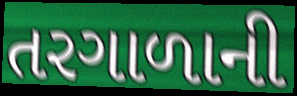
તરગાળાની